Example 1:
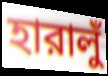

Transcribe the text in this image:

হারালুঁ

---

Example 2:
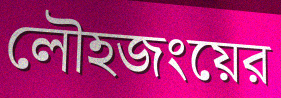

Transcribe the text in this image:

লৌহজংয়ের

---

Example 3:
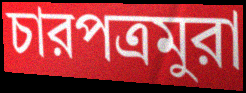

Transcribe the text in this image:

চারপত্রমুরা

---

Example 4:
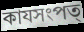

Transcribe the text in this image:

কাযসংপত্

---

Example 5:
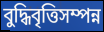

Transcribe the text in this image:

বুদ্ধিবৃত্তিসম্পন্ন